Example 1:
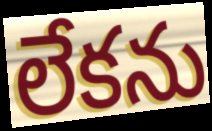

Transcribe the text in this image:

లేకను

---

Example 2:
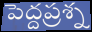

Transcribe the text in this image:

పెద్దప్రశ్న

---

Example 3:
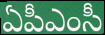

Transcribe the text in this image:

ఏపీఎంసీ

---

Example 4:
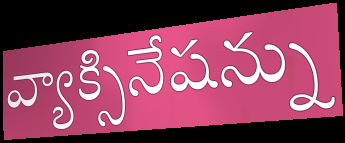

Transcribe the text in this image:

వ్యాక్సినేషన్ను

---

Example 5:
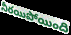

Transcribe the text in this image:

నీరయిపోయింది